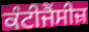
ਕੰਟੀਜੈਂਸੀਜ਼